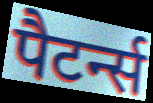
पैटर्न्स